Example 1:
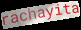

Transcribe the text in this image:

rachayita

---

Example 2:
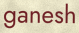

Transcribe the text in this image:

ganesh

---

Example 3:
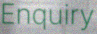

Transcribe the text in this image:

Enquiry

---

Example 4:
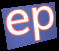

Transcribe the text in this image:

ep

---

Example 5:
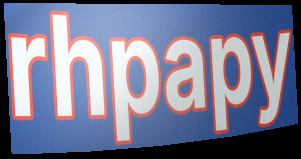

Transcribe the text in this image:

rhpapy